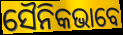
ସୈନିକଭାବେ